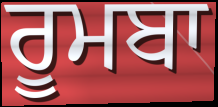
ਰੂਮਬਾ